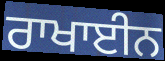
ਰਾਖਾਈਨ